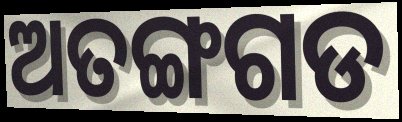
ଅତଙ୍ଗଗଡ